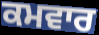
ਕਮਵਾਰ